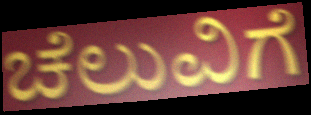
ಚೆಲುವಿಗೆ